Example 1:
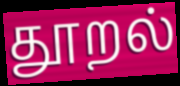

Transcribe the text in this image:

தூறல்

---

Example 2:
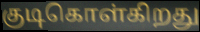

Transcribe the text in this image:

குடிகொள்கிறது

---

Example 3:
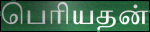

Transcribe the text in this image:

பெரியதன்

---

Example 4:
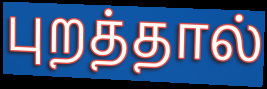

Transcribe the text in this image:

புறத்தால்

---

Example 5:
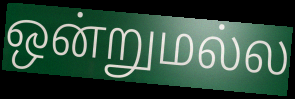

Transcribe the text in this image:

ஒன்றுமல்ல